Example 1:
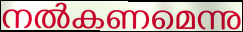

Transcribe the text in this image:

നൽകണമെന്നു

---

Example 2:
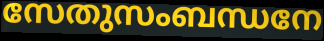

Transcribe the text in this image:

സേതുസംബന്ധനേ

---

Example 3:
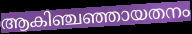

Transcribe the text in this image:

ആകിഞ്ചഞ്ഞായതനം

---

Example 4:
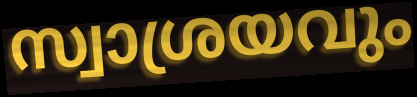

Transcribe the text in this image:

സ്വാശ്രയവും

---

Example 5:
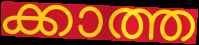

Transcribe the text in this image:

ക്കാത്ത